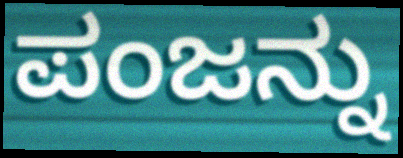
ಪಂಜನ್ನು